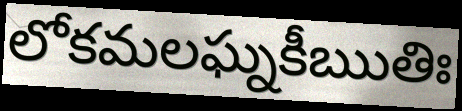
లోకమలఘ్నకీఋతిః